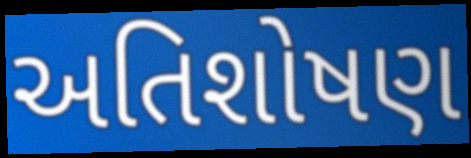
અતિશોષણ